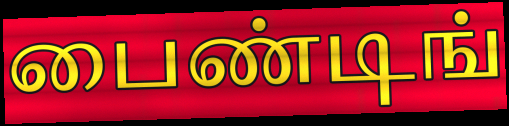
பைண்டிங்